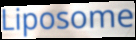
Liposome